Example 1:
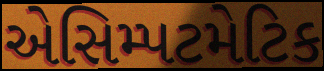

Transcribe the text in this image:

એસિમ્પટમેટિક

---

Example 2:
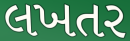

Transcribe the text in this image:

લખતર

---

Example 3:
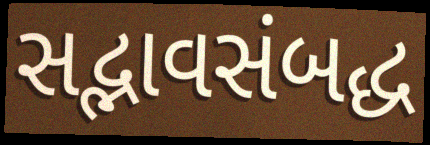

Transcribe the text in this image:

સદ્ભાવસંબદ્ધ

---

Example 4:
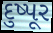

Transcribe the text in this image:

દુષ્પૂર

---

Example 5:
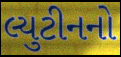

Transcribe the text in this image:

લ્યુટીનનો